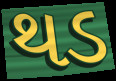
થડ